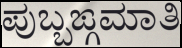
ಪುಬ್ಬಙ್ಗಮಾತಿ